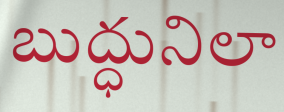
బుద్ధునిలా